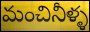
మంచినీళ్ళ